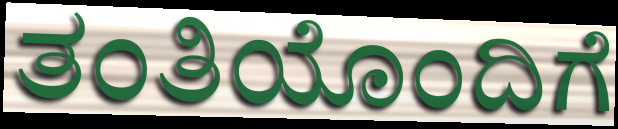
ತಂತಿಯೊಂದಿಗೆ